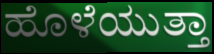
ಹೊಳೆಯುತ್ತಾ